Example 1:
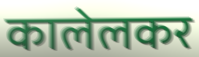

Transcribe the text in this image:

कालेलकर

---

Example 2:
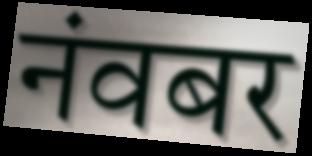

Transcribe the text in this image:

नंवबर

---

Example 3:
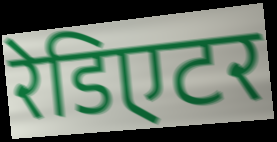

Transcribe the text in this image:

रेडिएटर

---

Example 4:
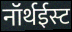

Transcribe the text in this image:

नॉर्थईस्‍ट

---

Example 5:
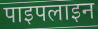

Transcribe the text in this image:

पाइपलाइन